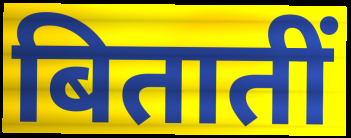
बितातीं